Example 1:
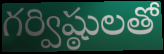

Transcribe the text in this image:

గర్విష్ఠులతో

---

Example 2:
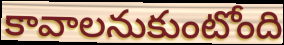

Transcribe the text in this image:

కావాలనుకుంటోంది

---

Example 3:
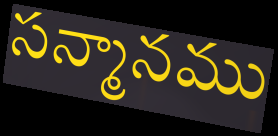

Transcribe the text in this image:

సన్మానము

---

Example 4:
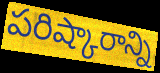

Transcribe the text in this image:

పరిష్కారాన్ని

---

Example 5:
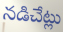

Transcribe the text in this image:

నడిచేట్లు